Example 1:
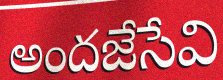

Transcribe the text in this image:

అందజేసేవి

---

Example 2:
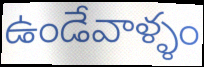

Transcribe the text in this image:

ఉండేవాళ్ళం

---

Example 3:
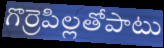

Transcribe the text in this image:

గొర్రెపిల్లతోపాటు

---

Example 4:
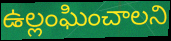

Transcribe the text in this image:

ఉల్లంఘించాలని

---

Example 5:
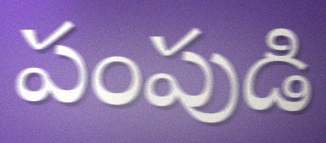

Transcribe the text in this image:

పంపుడి